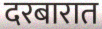
दरबारात